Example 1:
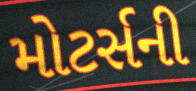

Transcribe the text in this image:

મોટર્સની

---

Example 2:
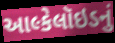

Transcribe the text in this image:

આલ્કેલૉઇડનું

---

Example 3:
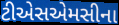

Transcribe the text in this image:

ટીએસએમસીના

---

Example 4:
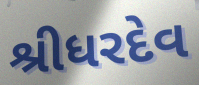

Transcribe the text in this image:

શ્રીધરદેવ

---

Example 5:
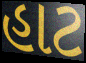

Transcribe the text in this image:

હાટ